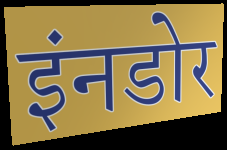
इंनडोर